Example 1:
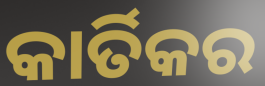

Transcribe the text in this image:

କାର୍ତିକର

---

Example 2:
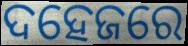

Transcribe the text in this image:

ଦହେଜରେ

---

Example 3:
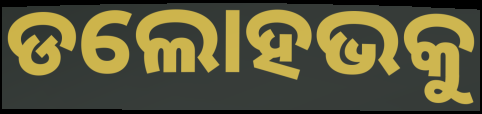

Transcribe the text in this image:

ଡଲୋହଭକୁ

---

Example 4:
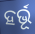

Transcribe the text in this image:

ହର୍ଭୂ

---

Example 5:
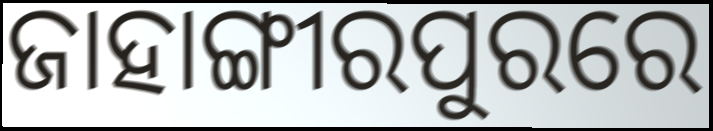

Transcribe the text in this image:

ଜାହାଙ୍ଗୀରପୁରରେ